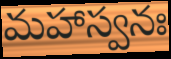
మహాస్వనః